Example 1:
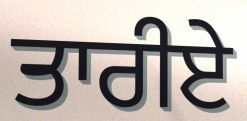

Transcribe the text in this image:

ਤਾਰੀਏ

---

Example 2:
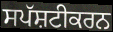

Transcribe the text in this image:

ਸਪੱਸ਼ਟੀਕਰਨ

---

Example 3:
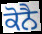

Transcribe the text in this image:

ਕੋਨੈ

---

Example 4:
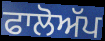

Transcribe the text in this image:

ਫਾਲੋਅੱਪ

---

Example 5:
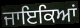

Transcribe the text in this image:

ਜਾਇਕਿਆਂ